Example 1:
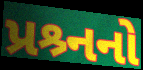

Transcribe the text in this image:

પ્રશ્ર્નનો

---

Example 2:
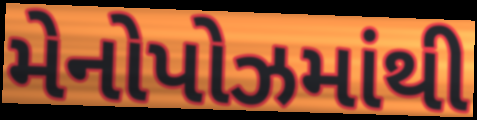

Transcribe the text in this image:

મેનોપોઝમાંથી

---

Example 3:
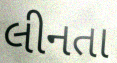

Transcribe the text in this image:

લીનતા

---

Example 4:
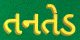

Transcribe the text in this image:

તનતેડ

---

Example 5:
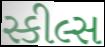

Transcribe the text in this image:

સ્કીલ્સ